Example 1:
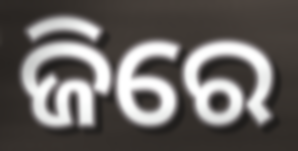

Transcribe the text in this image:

ଜିରେ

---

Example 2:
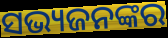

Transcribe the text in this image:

ସଭ୍ୟଜନଙ୍କର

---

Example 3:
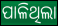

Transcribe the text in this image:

ପାଳିଥିଲା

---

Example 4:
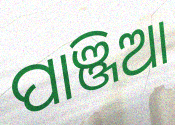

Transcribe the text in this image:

ପାଞ୍ଜିଆ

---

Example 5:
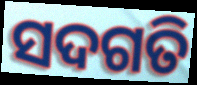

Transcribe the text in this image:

ସଦଗତି